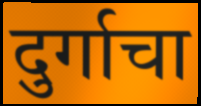
दुर्गाचा